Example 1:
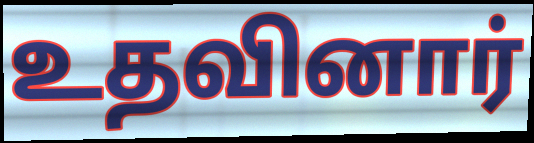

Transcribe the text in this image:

உதவினார்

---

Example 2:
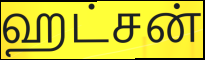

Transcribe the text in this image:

ஹட்சன்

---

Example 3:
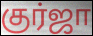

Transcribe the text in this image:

குர்ஜா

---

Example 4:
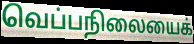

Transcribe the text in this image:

வெப்பநிலையைக்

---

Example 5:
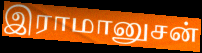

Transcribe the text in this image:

இராமானுசன்